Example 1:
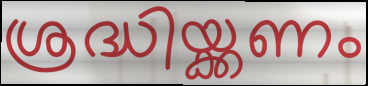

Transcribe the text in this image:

ശ്രദ്ധിയ്ക്കണം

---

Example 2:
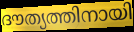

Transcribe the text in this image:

ദൗത്യത്തിനായി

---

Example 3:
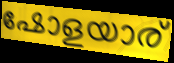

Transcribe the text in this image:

ഷോളയാര്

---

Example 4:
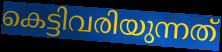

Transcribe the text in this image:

കെട്ടിവരിയുന്നത്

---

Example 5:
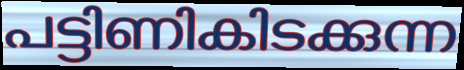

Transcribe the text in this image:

പട്ടിണികിടക്കുന്ന